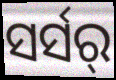
ସର୍ସର୍